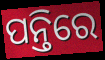
ପନ୍ତିରେ